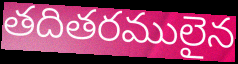
తదితరములైన